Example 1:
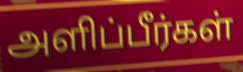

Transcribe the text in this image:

அளிப்பீர்கள்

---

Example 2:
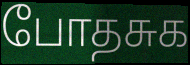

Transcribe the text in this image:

போதசுக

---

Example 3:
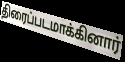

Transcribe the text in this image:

திரைப்படமாக்கினார்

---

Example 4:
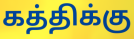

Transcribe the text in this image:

கத்திக்கு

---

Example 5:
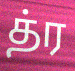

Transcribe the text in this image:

த்ர